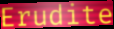
Erudite